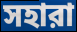
সহারা